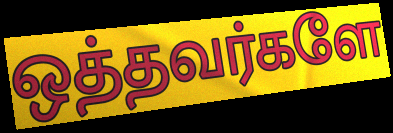
ஒத்தவர்களே